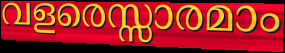
വളരെസ്സാരമാം